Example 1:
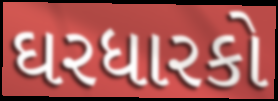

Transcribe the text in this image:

ઘરધારકો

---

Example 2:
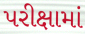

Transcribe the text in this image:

પરીક્ષામાં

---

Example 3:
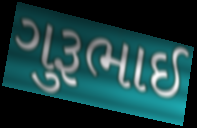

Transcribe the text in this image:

ગુરૂભાઈ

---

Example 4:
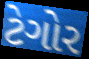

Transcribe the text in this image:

ટેગોર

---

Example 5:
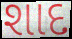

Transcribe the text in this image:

શાદ